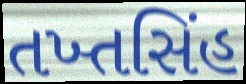
તખ્તસિંહ